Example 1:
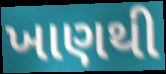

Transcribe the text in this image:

ખાણથી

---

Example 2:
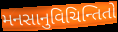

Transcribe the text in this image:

મનસાનુવિચિન્તિતો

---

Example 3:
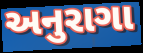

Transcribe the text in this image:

અનુરાગા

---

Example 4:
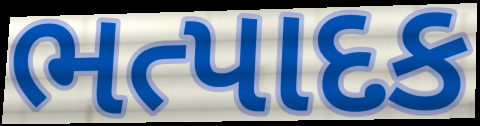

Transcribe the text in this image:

ભત્પાદક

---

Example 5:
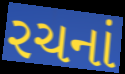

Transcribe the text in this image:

રચનાં